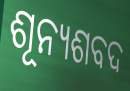
ଶୂନ୍ୟଶବଦ